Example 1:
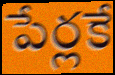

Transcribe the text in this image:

పేర్లకే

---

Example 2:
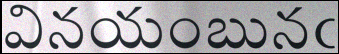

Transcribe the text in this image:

వినయంబునఁ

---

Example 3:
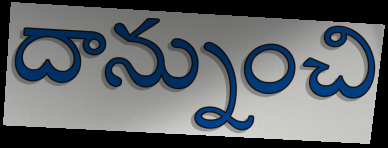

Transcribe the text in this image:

దాన్నుంచి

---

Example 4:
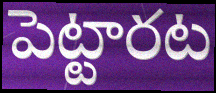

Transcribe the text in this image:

పెట్టారట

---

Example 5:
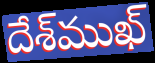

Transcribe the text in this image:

దేశ్‌ముఖ్